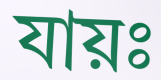
যায়ঃ